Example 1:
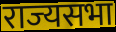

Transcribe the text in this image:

राज्‍यसभा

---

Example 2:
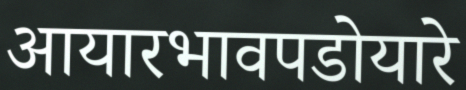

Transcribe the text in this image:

आयारभावपडोयारे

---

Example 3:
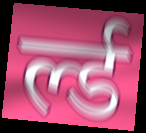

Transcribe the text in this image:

र्ल्ड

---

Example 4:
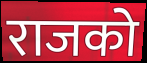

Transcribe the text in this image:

राजको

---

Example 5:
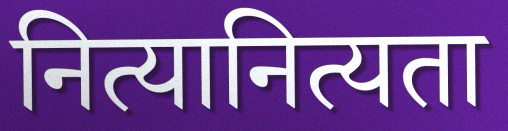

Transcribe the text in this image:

नित्यानित्यता